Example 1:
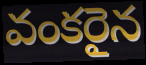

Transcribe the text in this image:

వంకరైన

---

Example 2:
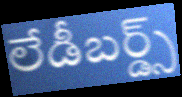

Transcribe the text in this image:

లేడీబర్డ్స్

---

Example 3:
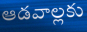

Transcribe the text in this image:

ఆడవాల్లకు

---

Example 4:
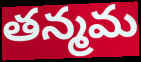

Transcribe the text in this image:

తన్మమ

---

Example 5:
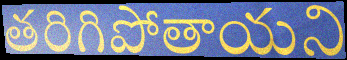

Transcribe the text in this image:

తరిగిపోతాయని